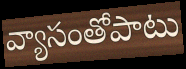
వ్యాసంతోపాటు